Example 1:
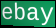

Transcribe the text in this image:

ebay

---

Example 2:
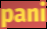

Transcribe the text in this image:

pani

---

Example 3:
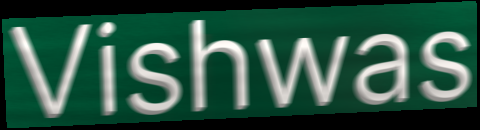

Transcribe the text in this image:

Vishwas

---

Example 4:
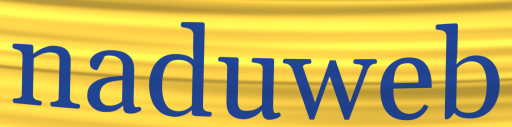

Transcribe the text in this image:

naduweb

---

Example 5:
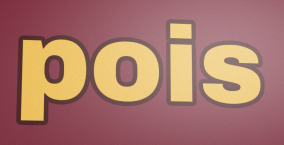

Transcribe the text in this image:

pois